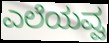
ಎಲೆಯವ್ವ